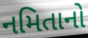
નમિતાનો